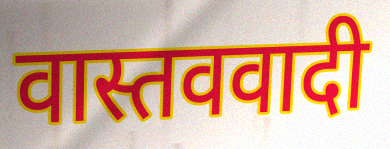
वास्तववादी